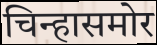
चिन्हासमोर